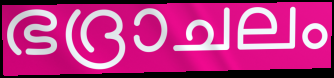
ഭദ്രാചലം